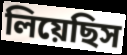
লিয়েছিস